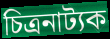
চিত্ৰনাট্যক